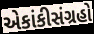
એકાંકીસંગ્રહો